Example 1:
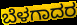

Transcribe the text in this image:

ಬೆಳಗಾದರ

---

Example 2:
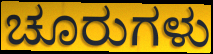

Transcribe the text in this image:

ಚೂರುಗಳು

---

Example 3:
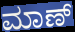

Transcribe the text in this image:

ಮಾಣ್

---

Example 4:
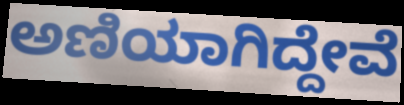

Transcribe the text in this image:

ಅಣಿಯಾಗಿದ್ದೇವೆ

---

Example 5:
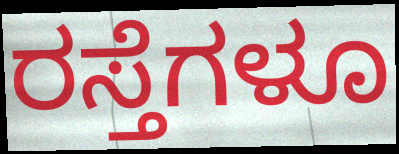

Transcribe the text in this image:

ರಸ್ತೆಗಳೂ